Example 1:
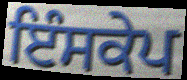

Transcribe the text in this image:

ਇੰਸਕੇਪ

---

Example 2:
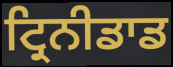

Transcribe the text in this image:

ਟ੍ਰਿਨੀਡਾਡ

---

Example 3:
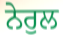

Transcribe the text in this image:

ਨੇਰੁਲ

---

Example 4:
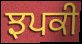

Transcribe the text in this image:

ਝਪਕੀ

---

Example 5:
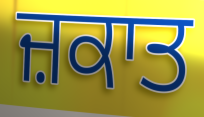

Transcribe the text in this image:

ਜ਼ਕਾਤ